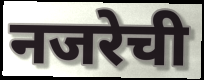
नजरेची